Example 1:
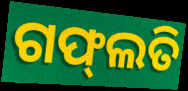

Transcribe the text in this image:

ଗଫ୍‌ଲତି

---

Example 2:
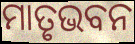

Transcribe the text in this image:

ମାତୃଭବନ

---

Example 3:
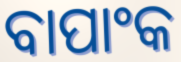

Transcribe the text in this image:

ବାପାଂକ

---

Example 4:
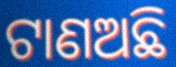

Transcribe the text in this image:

ଟାଣଅଛି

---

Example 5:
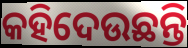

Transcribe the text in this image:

କହିଦେଉଛନ୍ତି